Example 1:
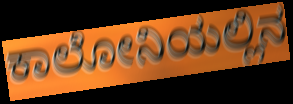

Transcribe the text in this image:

ಕಾಲೋನಿಯಲ್ಲಿನ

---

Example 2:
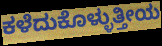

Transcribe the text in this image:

ಕಳೆದುಕೊಳ್ಳುತ್ತೀಯ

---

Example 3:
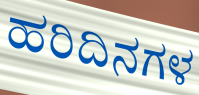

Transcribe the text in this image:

ಹರಿದಿನಗಳ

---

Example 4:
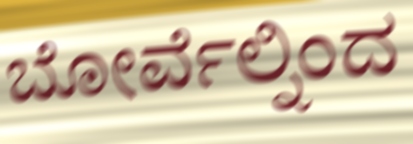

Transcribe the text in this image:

ಬೋರ್ವೆಲ್ನಿಂದ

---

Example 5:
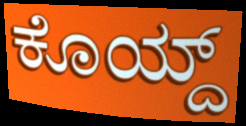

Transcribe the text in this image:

ಕೊಯ್ದ್